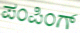
ಪಂಪಿಂಗ್